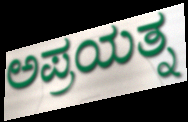
ಅಪ್ರಯತ್ನ